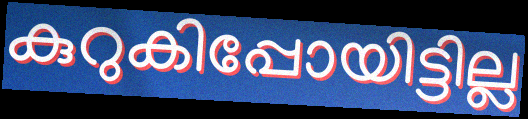
കുറുകിപ്പോയിട്ടില്ല